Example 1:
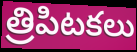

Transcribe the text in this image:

త్రిపిటకలు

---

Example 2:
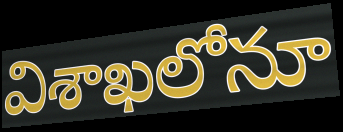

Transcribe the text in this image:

విశాఖలోనూ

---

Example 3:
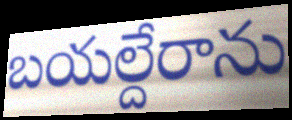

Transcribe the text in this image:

బయల్దేరాను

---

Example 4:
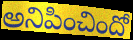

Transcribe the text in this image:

అనిపించిందో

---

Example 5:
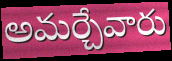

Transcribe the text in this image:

అమర్చేవారు